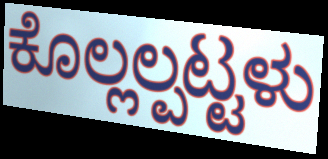
ಕೊಲ್ಲಲ್ಪಟ್ಟಳು